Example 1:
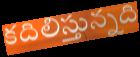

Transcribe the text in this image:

కదిలిస్తున్నది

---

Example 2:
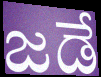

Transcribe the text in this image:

జడే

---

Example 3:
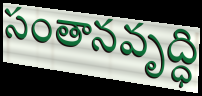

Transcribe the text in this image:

సంతానవృద్ధి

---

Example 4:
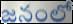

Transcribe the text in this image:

జనంలో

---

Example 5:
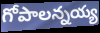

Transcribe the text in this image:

గోపాలన్నయ్య